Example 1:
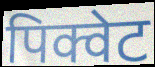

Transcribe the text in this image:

पिक्वेट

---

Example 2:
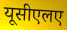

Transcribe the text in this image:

यूसीएलए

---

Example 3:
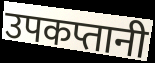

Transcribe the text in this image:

उपकप्तानी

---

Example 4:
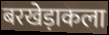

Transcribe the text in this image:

बरखेड़ाकला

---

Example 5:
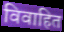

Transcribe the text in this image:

विवाहित